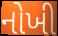
નોખી